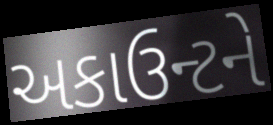
અકાઉન્ટને